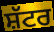
ਸ਼ੱਟਰ